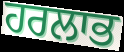
ਹਰਲਾਭ